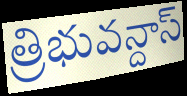
త్రిభువన్దాస్